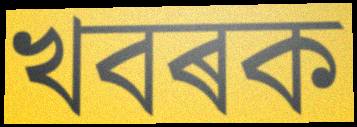
খবৰক